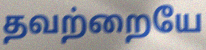
தவற்றையே